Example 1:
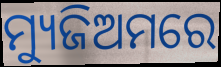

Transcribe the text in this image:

ମ୍ୟୁଜିଅମରେ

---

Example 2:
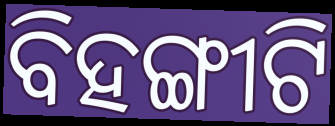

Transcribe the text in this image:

ବିହଙ୍ଗୀଟି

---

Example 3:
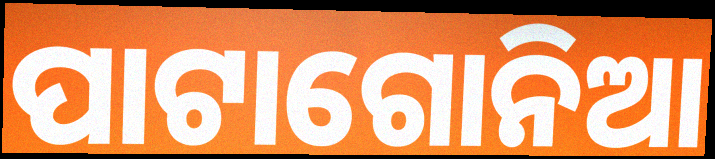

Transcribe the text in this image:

ପାଟାଗୋନିଆ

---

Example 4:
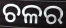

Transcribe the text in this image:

ଚଳର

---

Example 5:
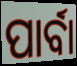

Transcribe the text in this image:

ପାର୍ବା